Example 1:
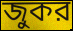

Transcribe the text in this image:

জুকর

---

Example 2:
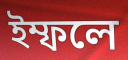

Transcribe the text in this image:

ইম্ফলে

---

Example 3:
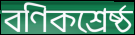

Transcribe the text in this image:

বণিকশ্রেষ্ঠ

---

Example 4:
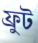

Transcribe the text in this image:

ফ্রুট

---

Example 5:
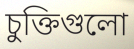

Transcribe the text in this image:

চুক্তিগুলো